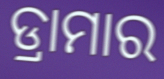
ଡ୍ରାମାର